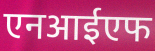
एनआईएफ